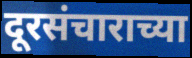
दूरसंचाराच्या